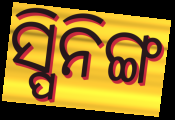
ସ୍ପିନିଙ୍ଗ